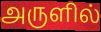
அருளில்